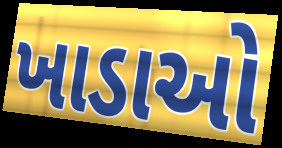
ખાડાઓ